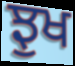
ਝੁਖ